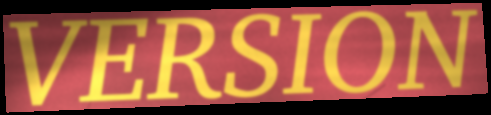
VERSION